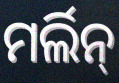
ମର୍ଲିନ୍